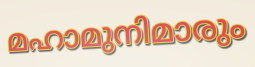
മഹാമുനിമാരും